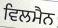
ਵਿਲਮੈਨ